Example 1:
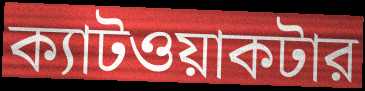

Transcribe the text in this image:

ক্যাটওয়াকটার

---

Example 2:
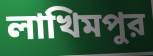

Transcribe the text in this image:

লাখিমপুর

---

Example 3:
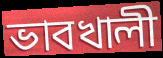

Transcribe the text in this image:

ভাবখালী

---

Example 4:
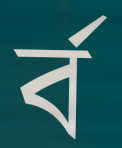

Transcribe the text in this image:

র্ব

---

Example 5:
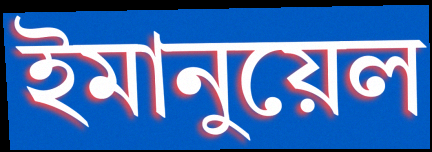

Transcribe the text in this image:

ইমানুয়েল